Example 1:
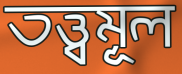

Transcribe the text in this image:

তত্ত্বমূল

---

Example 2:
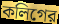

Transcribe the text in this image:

কলিগের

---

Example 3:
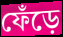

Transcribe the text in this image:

ফেঁড়ে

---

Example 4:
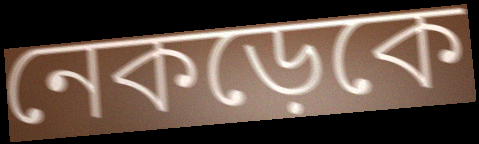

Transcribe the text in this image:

নেকড়েকে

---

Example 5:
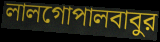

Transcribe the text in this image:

লালগোপালবাবুর